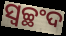
ସ୍ୱଚ୍ଛଂଦ